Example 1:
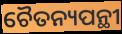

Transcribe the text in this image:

ଚୈତନ୍ୟପନ୍ଥୀ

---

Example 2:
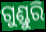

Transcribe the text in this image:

ଗୁଣ୍ଡୁରି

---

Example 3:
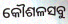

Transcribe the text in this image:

କୌଶଳସବୁ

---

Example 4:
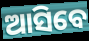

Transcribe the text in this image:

ଆସିବେ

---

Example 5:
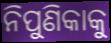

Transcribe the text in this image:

ନିପୁଣିକାକୁ